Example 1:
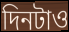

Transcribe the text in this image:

দিনটাও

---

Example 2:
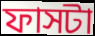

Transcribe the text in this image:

ফাসটা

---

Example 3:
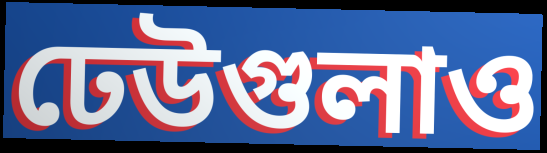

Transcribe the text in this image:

ঢেউগুলাও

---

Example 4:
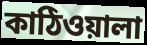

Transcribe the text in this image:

কাঠিওয়ালা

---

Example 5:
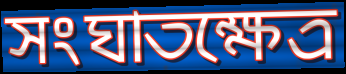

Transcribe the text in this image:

সংঘাতক্ষেত্র